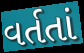
વર્તતાં